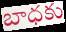
బాధకు